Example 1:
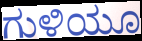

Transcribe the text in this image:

ಗುಳಿಯೂ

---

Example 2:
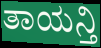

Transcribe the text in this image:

ತಾಯನ್ತಿ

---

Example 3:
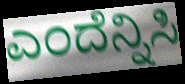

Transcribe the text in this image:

ಎಂದೆನ್ನಿಸಿ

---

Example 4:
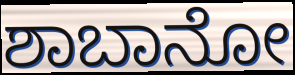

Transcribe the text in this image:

ಶಾಬಾನೋ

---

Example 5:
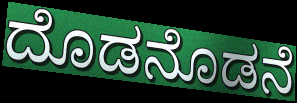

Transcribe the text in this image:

ದೊಡನೊಡನೆ